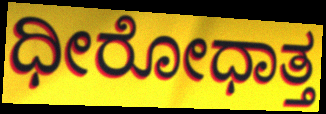
ಧೀರೋಧಾತ್ತ